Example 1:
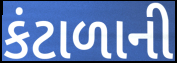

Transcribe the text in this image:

કંટાળાની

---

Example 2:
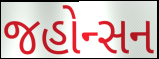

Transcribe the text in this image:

જહોન્સન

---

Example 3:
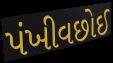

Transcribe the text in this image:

પંખીવછોઈ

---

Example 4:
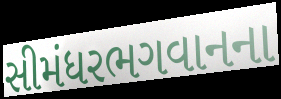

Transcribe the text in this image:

સીમંધરભગવાનના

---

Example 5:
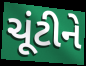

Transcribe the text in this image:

ચૂંટીને